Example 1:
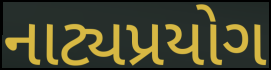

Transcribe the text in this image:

નાટ્યપ્રયોગ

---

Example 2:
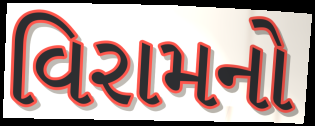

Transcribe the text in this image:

વિરામનો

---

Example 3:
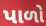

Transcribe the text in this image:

પાળો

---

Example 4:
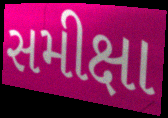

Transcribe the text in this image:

સમીક્ષા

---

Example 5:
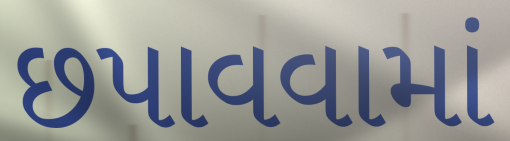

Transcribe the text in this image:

છપાવવામાં